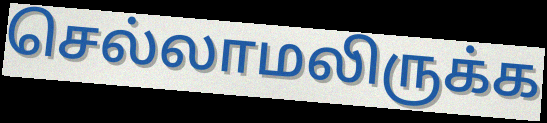
செல்லாமலிருக்க